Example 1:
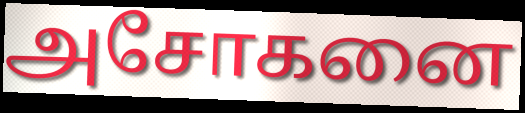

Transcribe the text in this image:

அசோகனை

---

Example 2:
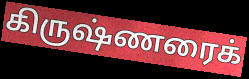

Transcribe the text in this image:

கிருஷ்ணரைக்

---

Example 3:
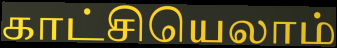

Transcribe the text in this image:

காட்சியெலாம்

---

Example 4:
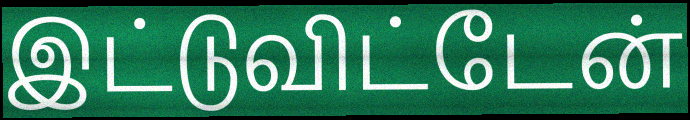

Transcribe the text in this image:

இட்டுவிட்டேன்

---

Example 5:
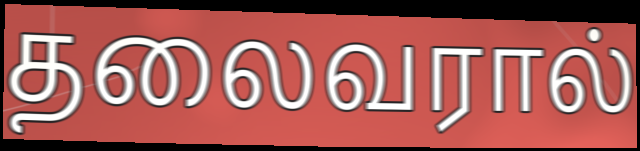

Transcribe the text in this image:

தலைவரால்